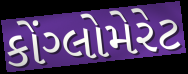
કોંગ્લોમેરેટ